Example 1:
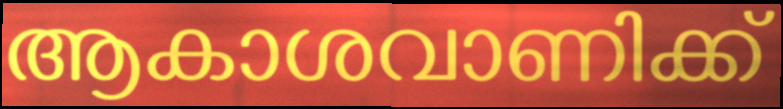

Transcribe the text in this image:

ആകാശവാണിക്ക്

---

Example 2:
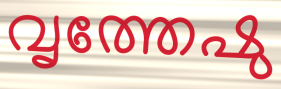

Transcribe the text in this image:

വൃത്തേഷു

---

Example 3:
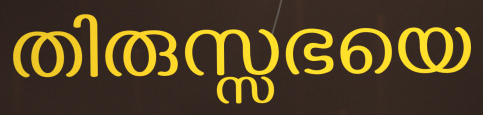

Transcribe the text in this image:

തിരുസ്സഭയെ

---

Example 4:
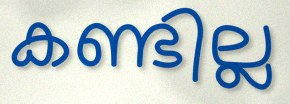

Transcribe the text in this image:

കണ്ടില്ല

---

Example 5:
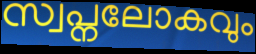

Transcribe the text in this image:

സ്വപ്നലോകവും